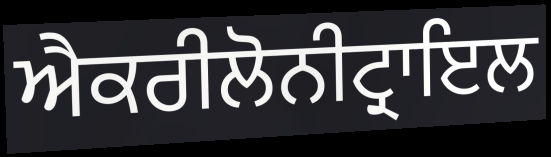
ਐਕਰੀਲੋਨੀਟ੍ਰਾਇਲ